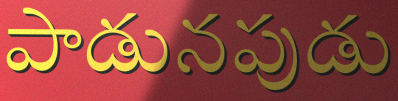
పాడునపుడు